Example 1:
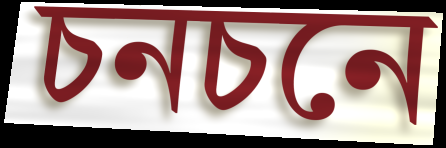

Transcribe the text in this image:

চনচনে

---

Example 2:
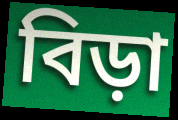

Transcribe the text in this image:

বিড়া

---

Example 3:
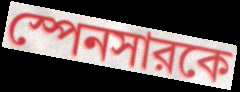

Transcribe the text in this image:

স্পেনসারকে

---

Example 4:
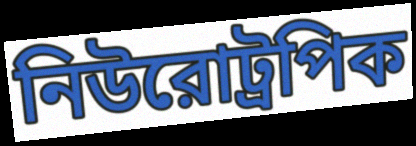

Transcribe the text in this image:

নিউরোট্রপিক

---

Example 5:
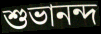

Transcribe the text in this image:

শুভানন্দ